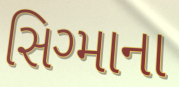
સિગ્માના